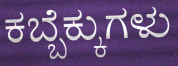
ಕಬ್ಬೆಕ್ಕುಗಳು